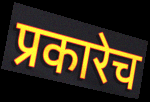
प्रकारेच